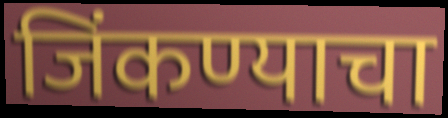
जिंकण्याचा